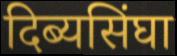
दिब्यसिंघा